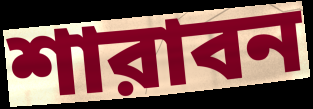
শারাবন